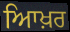
ਆਿਖ਼ਰ